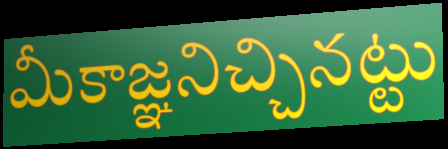
మీకాజ్ఞనిచ్చినట్టు